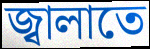
জ্বালাতে